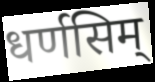
धर्णसिम्